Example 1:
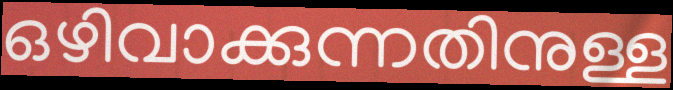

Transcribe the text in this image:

ഒഴിവാക്കുന്നതിനുള്ള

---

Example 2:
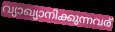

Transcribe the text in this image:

വ്യാഖ്യാനിക്കുന്നവര്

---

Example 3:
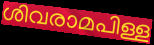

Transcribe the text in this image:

ശിവരാമപിള്ള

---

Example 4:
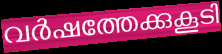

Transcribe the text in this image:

വർഷത്തേക്കുകൂടി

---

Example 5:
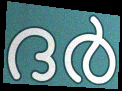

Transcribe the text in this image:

ദർ